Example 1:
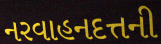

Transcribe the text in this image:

નરવાહનદત્તની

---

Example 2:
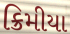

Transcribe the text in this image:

ક્રિમીયા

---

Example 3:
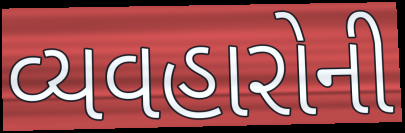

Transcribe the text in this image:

વ્યવહારોની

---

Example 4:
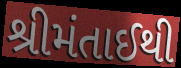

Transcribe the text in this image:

શ્રીમંતાઈથી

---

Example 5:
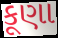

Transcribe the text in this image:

કૂણા